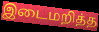
இடைமறித்த